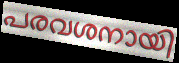
പരവശനായി